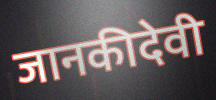
जानकीदेवी